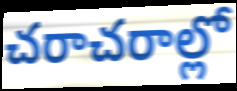
చరాచరాల్లో